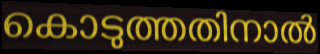
കൊടുത്തതിനാൽ